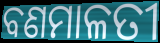
ବଣମାଳତୀ